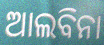
ଆଲବିନା